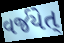
વર્જયેત્